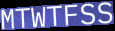
MTWTFSS